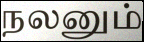
நலனும்